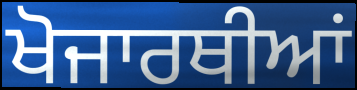
ਖੋਜਾਰਥੀਆਂ